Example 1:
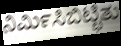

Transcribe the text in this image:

ನಿರ್ಮಿಸಿಬಿಟ್ಟಿತು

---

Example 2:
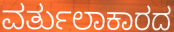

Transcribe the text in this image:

ವರ್ತುಲಾಕಾರದ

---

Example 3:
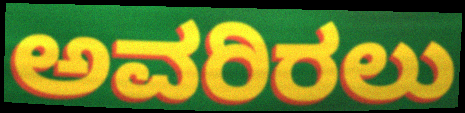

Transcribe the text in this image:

ಅವರಿರಲು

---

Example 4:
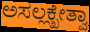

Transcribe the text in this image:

ಅಸಲ್ಲಕ್ಖೇತ್ವಾ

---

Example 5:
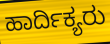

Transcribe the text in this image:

ಹಾರ್ದಿಕ್ಯರು